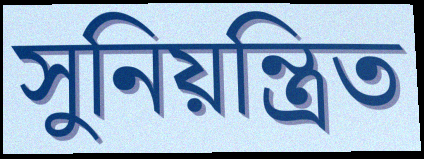
সুনিয়ন্ত্ৰিত